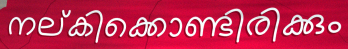
നല്കിക്കൊണ്ടിരിക്കും